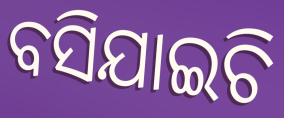
ବସିଯାଇଚି